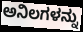
ಅನಿಲಗಳನ್ನು